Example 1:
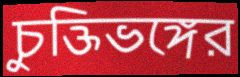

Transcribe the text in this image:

চুক্তিভঙ্গের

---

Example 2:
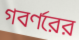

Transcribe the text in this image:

গবর্ণরের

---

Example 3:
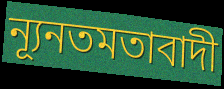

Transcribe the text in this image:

ন্যূনতমতাবাদী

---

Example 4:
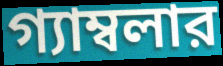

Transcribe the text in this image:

গ্যাম্বলার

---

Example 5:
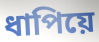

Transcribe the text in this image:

ধাপিয়ে